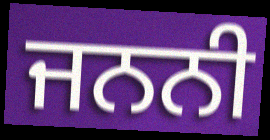
ਜਨਨੀ